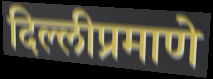
दिल्लीप्रमाणे